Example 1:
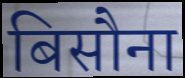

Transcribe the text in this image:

बिसौना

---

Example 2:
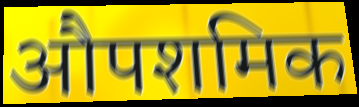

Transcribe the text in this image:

औपशमिक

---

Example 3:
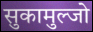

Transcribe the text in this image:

सुकामुल्जो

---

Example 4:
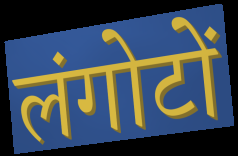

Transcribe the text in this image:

लंगोटों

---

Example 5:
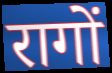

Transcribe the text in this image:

रागों